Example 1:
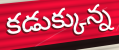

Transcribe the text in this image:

కడుక్కున్న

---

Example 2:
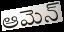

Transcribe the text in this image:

ఆమెన్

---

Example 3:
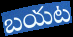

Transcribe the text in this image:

బయట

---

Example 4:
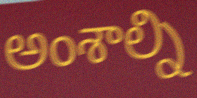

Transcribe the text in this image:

అంశాల్ని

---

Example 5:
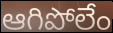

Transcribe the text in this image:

ఆగిపోలేం